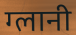
ग्लानी